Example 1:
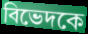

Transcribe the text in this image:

বিভেদকে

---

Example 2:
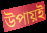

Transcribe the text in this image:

উপায়ই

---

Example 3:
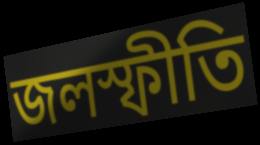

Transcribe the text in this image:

জলস্ফীতি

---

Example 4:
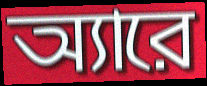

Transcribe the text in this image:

অ্যারে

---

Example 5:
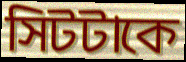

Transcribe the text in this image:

সিটটাকে